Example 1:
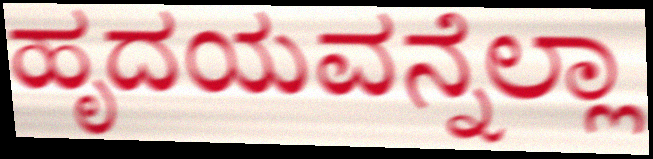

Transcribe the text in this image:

ಹೃದಯವನ್ನೆಲ್ಲಾ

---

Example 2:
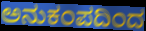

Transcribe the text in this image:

ಅನುಕಂಪದಿಂದ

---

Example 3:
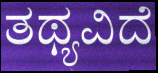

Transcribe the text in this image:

ತಥ್ಯವಿದೆ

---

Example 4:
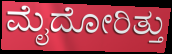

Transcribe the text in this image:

ಮೈದೋರಿತ್ತು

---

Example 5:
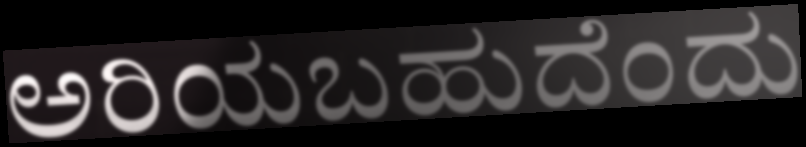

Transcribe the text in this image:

ಅರಿಯಬಹುದೆಂದು